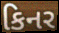
કિનર